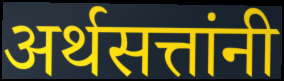
अर्थसत्तांनी